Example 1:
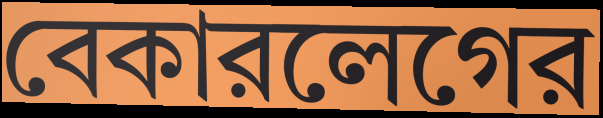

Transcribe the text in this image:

বেকারলেগের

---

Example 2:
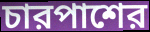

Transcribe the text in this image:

চারপাশের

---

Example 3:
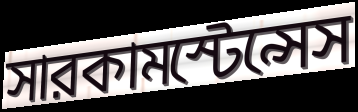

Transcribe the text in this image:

সারকামস্টেন্সেস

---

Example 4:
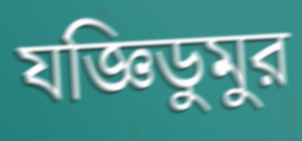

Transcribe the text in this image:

যজ্ঞিডুমুর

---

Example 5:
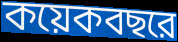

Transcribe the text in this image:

কয়েকবছরে